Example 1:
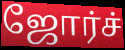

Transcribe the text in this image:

ஜோர்ச்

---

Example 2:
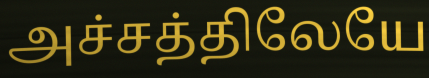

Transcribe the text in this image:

அச்சத்திலேயே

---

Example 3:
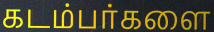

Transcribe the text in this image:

கடம்பர்களை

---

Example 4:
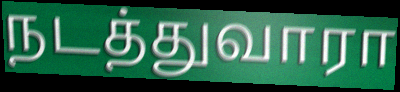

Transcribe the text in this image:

நடத்துவாரா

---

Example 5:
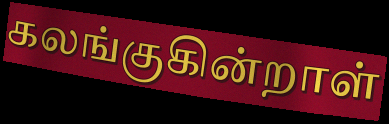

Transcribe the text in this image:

கலங்குகின்றாள்